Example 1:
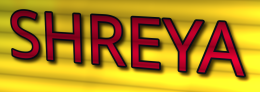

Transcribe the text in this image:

SHREYA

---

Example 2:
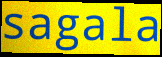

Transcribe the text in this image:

sagala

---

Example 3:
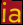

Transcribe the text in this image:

ia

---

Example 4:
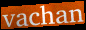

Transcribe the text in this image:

vachan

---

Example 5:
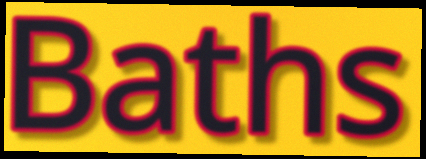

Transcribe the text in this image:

Baths